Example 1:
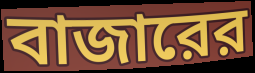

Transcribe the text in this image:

বাজারের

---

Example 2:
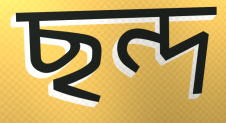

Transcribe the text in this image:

ছন্দ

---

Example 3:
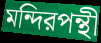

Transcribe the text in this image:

মন্দিরপন্থী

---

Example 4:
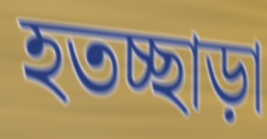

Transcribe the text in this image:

হতচ্ছাড়া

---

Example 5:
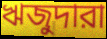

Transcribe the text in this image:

ঋজুদারা